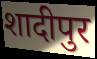
शादीपुर